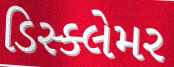
ડિસ્ક્લેમર